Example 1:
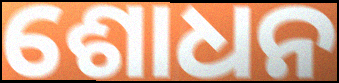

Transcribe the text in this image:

ଶୋଧନ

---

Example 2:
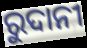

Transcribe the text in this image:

ରୁଦାନୀ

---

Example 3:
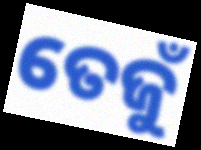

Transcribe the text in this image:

ତେଜୁଁ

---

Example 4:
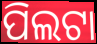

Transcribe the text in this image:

ପିଲଟା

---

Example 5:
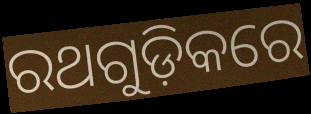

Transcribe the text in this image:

ରଥଗୁଡ଼ିକରେ